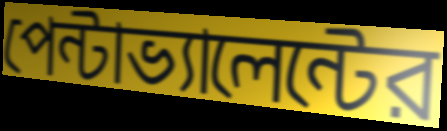
পেন্টাভ্যালেন্টের